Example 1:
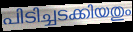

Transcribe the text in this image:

പിടിച്ചടക്കിയതും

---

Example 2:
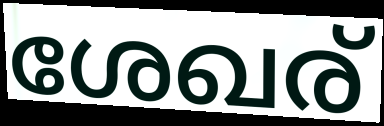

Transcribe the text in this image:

ശേഖര്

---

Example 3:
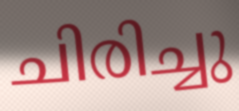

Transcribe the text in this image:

ചിരിച്ചു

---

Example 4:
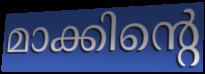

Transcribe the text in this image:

മാക്കിന്റെ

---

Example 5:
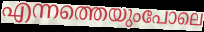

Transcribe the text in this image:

എന്നത്തെയുംപോലെ